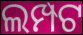
ଲମ୍ପଟ